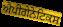
ਐਪੀਗੇਨੇਟਿਕਸ